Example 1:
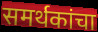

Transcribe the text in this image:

समर्थकांचा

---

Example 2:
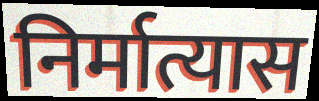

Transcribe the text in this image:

निर्मात्यास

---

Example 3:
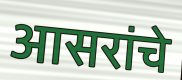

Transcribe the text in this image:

आसरांचे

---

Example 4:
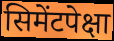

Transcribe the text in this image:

सिमेंटपेक्षा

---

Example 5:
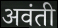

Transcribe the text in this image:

अवंती